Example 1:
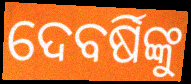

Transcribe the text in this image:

ଦେବର୍ଷିଙ୍କୁ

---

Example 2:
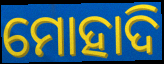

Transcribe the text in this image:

ମୋହାଦି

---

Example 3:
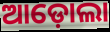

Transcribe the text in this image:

ଆଡ଼ୋଲା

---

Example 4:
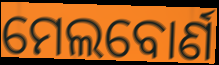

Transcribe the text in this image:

ମେଲବୋର୍ଣ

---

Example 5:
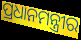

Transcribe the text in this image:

ପ୍ରଧାନମନ୍ତ୍ରୀର